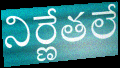
నిర్ణేతలే